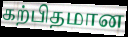
கற்பிதமான